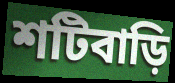
শটিবাড়ি